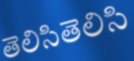
తెలిసితెలిసి